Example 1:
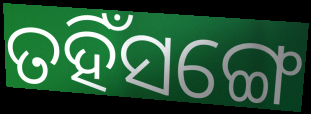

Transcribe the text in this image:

ତହିଁସଙ୍ଗେ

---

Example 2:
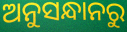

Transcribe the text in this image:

ଅନୁସନ୍ଧାନରୁ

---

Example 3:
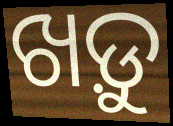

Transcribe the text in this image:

ଖଡ଼ୁ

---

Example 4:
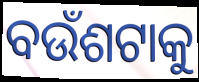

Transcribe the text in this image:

ବଉଁଶଟାକୁ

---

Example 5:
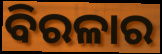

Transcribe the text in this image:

ବିରଳାର